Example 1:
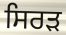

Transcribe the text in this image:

ਸਿਰਡ਼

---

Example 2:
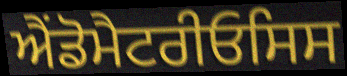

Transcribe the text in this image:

ਐਂਡੋਮੈਟਰੀਓਸਿਸ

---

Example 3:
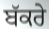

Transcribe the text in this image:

ਬੱਕਰੇ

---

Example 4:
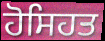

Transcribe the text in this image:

ਹੋਸਿਹਤ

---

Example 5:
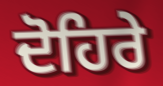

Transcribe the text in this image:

ਦੋਹਿਰੇ